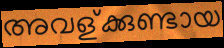
അവള്ക്കുണ്ടായ